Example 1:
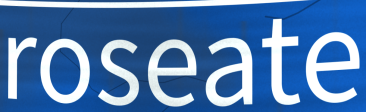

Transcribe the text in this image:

roseate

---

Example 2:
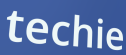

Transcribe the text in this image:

techie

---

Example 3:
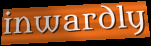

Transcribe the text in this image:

inwardly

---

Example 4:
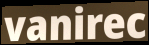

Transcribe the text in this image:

vanirec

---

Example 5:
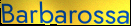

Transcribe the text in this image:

Barbarossa